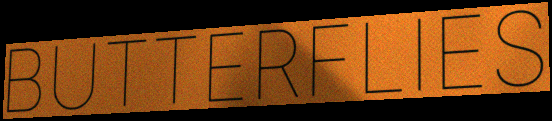
BUTTERFLIES